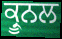
ਕ੍ਰੂਨਲ